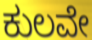
ಕುಲವೇ